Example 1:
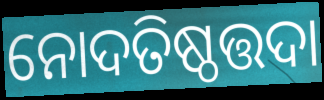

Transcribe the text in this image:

ନୋଦତିଷ୍ଠତ୍ତଦା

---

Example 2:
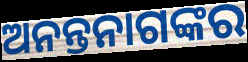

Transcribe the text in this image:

ଅନନ୍ତନାଗଙ୍କର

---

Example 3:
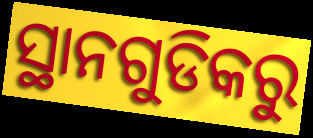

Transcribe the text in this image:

ସ୍ଥାନଗୁଡିକରୁ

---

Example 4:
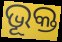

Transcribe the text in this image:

ଭୂକ୍ତ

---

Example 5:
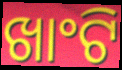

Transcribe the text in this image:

ଖାଂଟି